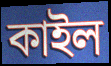
কাইল